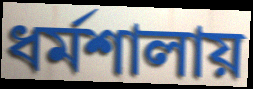
ধর্মশালায়